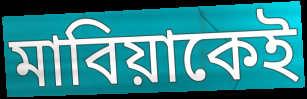
মাবিয়াকেই